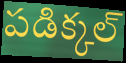
పడిక్కల్